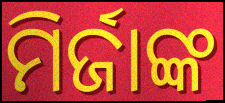
ମିର୍ଜାଙ୍କ